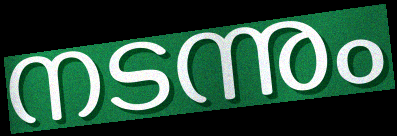
നടന്നും